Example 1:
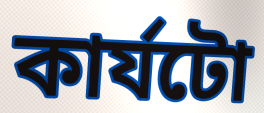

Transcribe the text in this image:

কাৰ্যটো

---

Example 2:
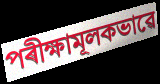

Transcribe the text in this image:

পৰীক্ষামূলকভাৱে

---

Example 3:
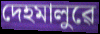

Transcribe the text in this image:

দেহমালুৱে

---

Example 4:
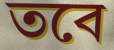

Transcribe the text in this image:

তবে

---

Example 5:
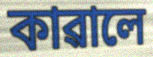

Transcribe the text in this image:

কাৱালে